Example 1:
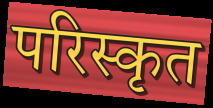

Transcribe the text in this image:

परिस्कृत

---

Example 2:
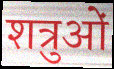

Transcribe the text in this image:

शत्रुओं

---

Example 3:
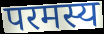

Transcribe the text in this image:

परमस्य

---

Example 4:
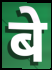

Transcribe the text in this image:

बे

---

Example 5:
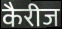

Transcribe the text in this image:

कैरीज